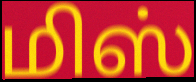
மிஸ்